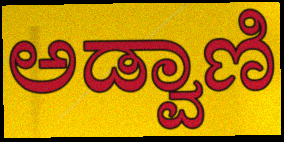
ಅಡ್ವಾಣಿ